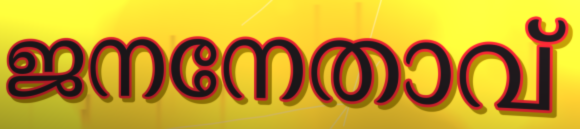
ജനനേതാവ്